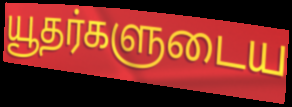
யூதர்களுடைய